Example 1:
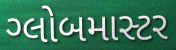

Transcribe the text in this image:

ગ્લોબમાસ્ટર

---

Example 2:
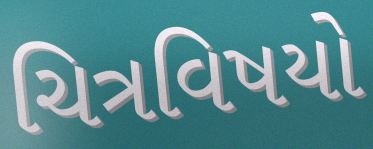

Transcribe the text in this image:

ચિત્રવિષયો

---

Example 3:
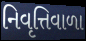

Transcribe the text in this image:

નિવૃત્તિવાળા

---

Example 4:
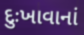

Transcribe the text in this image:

દુઃખાવાનાં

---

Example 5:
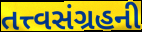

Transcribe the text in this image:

તત્ત્વસંગ્રહની